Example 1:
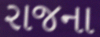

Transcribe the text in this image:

રાજના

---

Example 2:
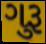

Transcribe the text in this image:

ગુરૂ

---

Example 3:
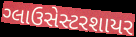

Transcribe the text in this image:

ગ્લાઉસેસ્ટરશાયર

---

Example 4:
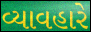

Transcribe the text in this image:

વ્યાવહારે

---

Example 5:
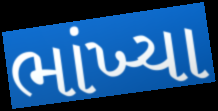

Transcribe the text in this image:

ભાંખ્યા